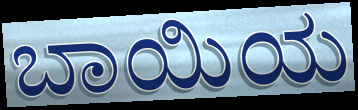
ಬಾಯಿಯ